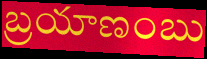
బ్రయాణంబు